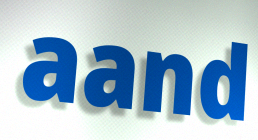
aand